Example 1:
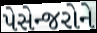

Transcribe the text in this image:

પેસેન્જરોને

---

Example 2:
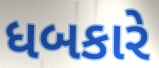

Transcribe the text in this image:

ધબકારે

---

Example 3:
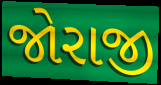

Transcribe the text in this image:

જોરાજી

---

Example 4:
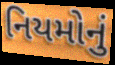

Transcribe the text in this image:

નિયમોનું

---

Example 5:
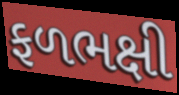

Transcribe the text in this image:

ફળભક્ષી